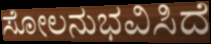
ಸೋಲನುಭವಿಸಿದೆ